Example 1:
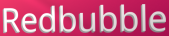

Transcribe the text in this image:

Redbubble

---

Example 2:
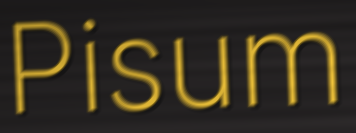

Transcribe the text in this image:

Pisum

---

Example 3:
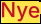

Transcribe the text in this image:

Nye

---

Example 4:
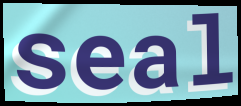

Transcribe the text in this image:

seal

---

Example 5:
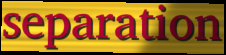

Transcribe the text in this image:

separation